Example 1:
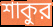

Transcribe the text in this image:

শাকুর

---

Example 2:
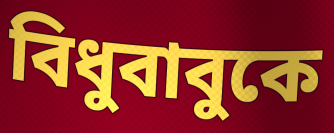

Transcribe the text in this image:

বিধুবাবুকে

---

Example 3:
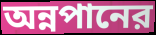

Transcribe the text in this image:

অন্নপানের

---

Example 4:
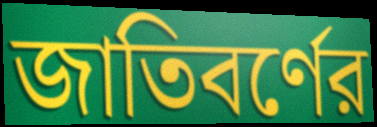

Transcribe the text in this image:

জাতিবর্ণের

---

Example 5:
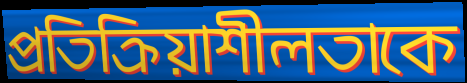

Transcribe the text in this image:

প্রতিক্রিয়াশীলতাকে